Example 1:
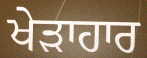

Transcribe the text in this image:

ਖੇੜਾਹਾਰ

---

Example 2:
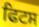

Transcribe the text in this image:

ਫਿਟਸ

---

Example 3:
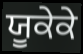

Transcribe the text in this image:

ਯੂਕੇਕੇ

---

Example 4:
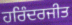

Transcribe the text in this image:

ਹਰਿੰਦਰਜੀਤ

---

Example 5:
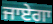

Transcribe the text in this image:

ਜਾਏਗਾ